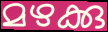
മഴക്കു